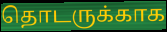
தொடருக்காக